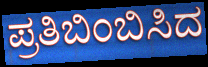
ಪ್ರತಿಬಿಂಬಿಸಿದ